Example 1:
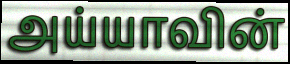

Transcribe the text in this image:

அய்யாவின்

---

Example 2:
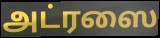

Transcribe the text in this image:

அட்ரஸை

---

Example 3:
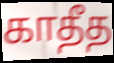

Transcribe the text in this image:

காதீத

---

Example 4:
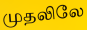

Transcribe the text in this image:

முதலிலே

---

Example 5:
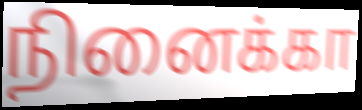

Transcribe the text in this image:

நினைக்கா